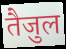
तैजुल